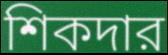
শিকদার